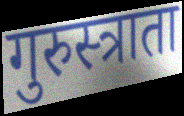
गुरुस्त्राता